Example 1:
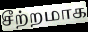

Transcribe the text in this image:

சீற்றமாக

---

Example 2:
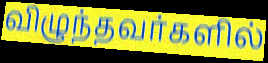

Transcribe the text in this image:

விழுந்தவர்களில்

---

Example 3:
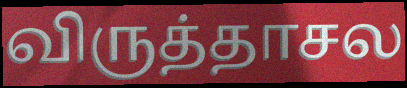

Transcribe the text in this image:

விருத்தாசல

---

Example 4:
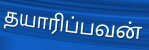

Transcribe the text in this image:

தயாரிப்பவன்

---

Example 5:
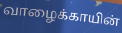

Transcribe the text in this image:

வாழைக்காயின்